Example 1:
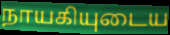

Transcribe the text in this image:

நாயகியுடைய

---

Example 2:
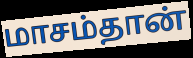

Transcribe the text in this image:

மாசம்தான்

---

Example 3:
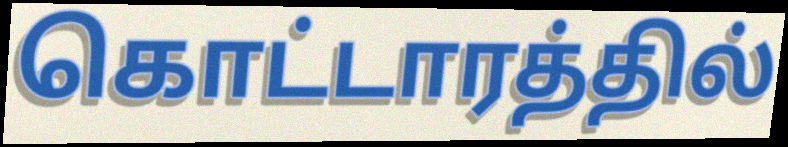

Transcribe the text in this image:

கொட்டாரத்தில்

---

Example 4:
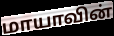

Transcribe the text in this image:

மாயாவின்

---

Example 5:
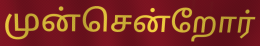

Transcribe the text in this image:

முன்சென்றோர்